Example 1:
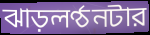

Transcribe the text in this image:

ঝাড়লণ্ঠনটার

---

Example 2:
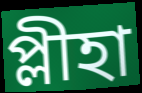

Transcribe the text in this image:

প্লীহা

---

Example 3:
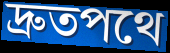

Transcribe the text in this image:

দ্রুতপথে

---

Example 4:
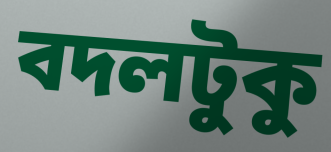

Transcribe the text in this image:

বদলটুকু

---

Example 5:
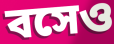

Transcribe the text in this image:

বসেও